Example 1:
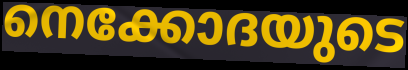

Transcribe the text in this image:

നെക്കോദയുടെ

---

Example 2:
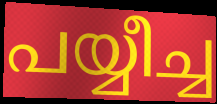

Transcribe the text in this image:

പയ്യീച്ച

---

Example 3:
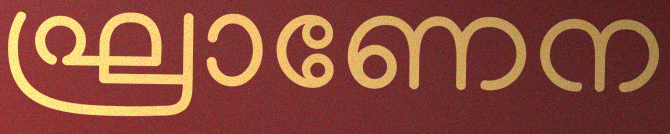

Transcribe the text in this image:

ഘ്രാണേന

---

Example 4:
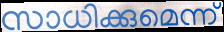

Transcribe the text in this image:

സാധിക്കുമെന്ന്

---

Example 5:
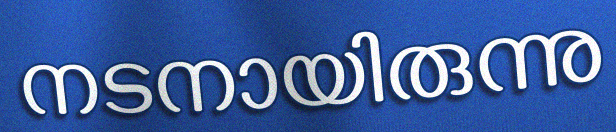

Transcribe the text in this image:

നടനായിരുന്നു